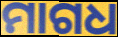
ମାଗଧ